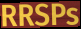
RRSPs